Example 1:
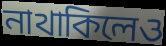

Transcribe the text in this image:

নাথাকিলেও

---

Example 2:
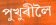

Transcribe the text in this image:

পুখুৰীলৈ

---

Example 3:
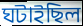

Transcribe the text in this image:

ঘটাইছিল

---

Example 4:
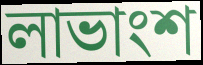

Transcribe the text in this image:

লাভাংশ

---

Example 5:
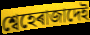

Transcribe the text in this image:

শ্বেহেৰাজাদেই